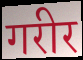
गरीर